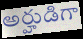
అర్హుడిగా